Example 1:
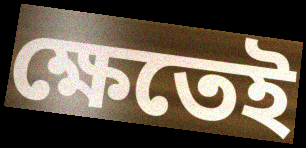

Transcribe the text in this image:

ক্ষেতেই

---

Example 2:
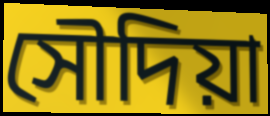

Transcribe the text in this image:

সৌদিয়া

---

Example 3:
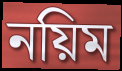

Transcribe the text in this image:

নয়িম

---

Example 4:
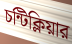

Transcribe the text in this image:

চন্টিক্লিয়ার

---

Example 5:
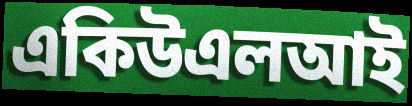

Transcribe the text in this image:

একিউএলআই